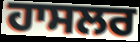
ਹਾਸਲਰ